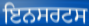
ਇਨਸਰਟਸ